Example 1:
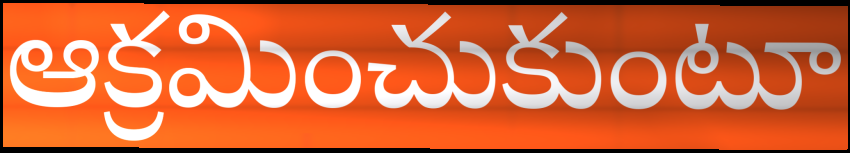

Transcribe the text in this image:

ఆక్రమించుకుంటూ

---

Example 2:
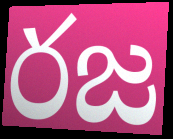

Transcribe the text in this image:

రజ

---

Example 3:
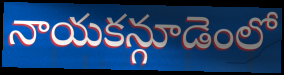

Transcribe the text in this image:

నాయకన్గూడెంలో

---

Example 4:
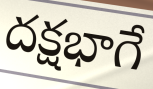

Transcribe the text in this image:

దక్షభాగే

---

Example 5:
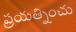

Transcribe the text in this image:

ప్రయత్నించు